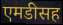
एमडीसह